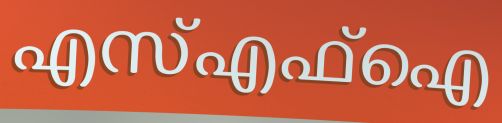
എസ്എഫ്ഐ